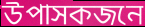
উপাসকজনে